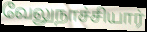
வேலுநாச்சியார்